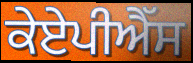
ਕੇਏਪੀਐੱਸ